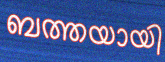
ബത്തയായി